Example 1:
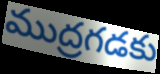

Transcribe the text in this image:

ముద్రగడకు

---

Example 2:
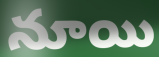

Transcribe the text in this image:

నూయి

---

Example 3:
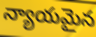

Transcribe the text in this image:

న్యాయమైన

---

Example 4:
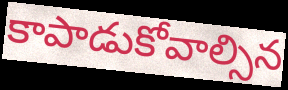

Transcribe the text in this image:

కాపాడుకోవాల్సిన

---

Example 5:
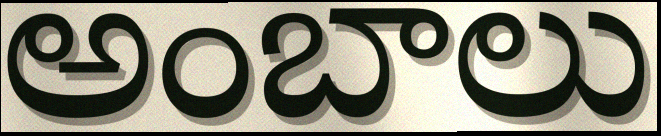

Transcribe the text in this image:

అంబాలు